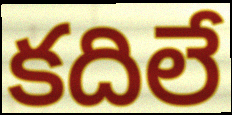
కదిలే